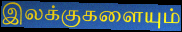
இலக்குகளையும்